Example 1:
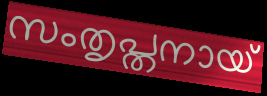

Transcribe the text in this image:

സംതൃപ്തനായ്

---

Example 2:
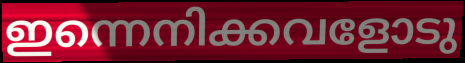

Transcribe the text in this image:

ഇന്നെനിക്കവളോടു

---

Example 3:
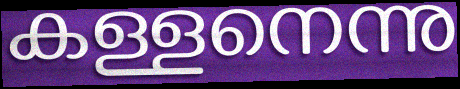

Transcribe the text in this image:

കള്ളനെന്നു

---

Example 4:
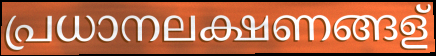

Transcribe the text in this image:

പ്രധാനലക്ഷണങ്ങള്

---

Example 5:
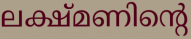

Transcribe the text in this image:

ലക്ഷ്മണിന്റെ